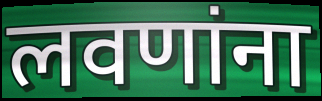
लवणांना